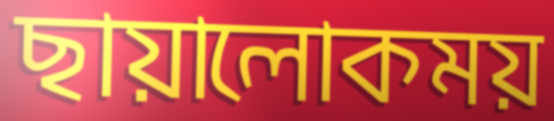
ছায়ালোকময়